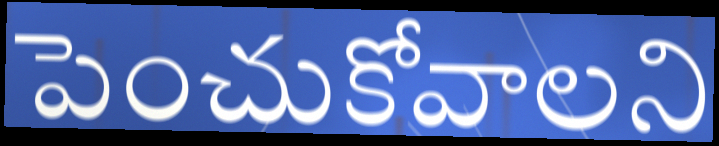
పెంచుకోవాలని